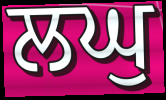
ਲਘੁ